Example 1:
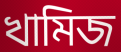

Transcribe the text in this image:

খামিজ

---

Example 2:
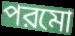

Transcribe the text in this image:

পরমো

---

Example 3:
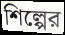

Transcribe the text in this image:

শিল্পের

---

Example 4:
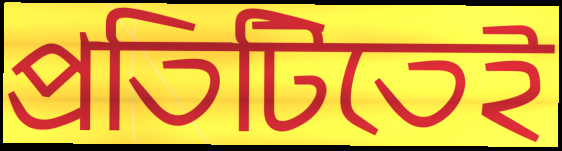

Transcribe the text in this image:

প্রতিটিতেই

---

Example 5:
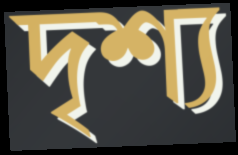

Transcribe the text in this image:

দৃশ্য